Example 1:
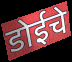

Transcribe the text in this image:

डोईचे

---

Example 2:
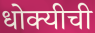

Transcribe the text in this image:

धोक्यीची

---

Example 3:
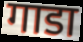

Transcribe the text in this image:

गाडा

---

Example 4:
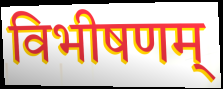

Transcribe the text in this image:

विभीषणम्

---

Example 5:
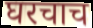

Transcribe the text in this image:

घरचाच